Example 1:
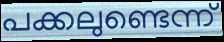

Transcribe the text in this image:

പക്കലുണ്ടെന്ന്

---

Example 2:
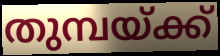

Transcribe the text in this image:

തുമ്പയ്ക്ക്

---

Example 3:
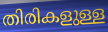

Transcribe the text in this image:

തിരികളുള്ള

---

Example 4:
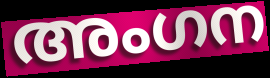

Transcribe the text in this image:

അംഗന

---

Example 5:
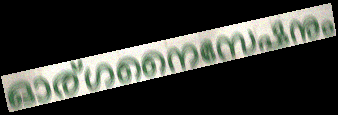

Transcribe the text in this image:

ഓര്ഗനൈസേഷനും